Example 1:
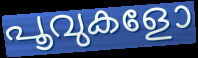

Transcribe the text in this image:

പൂവുകളോ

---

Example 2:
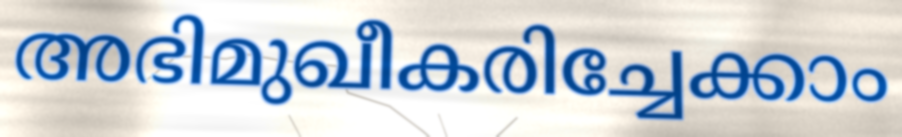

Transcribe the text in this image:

അഭിമുഖീകരിച്ചേക്കാം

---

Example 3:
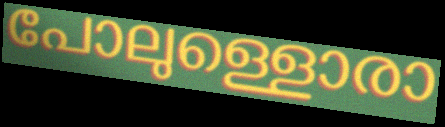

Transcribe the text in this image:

പോലുള്ളൊരാ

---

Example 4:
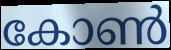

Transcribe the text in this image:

കോൺ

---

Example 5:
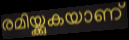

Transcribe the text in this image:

രമിയ്ക്കുകയാണ്